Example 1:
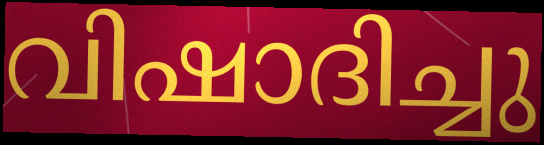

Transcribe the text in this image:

വിഷാദിച്ചു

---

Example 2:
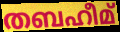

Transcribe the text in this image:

തബഹീമ്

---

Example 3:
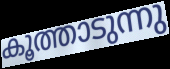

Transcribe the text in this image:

കൂത്താടുന്നു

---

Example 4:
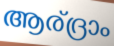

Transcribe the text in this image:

ആര്ദ്രാം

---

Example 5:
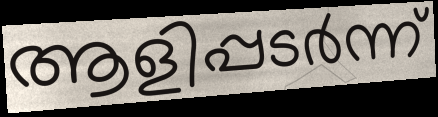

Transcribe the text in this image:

ആളിപ്പടർന്ന്